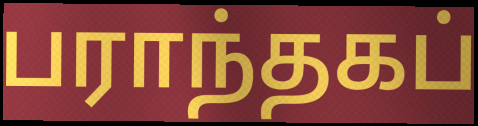
பராந்தகப்